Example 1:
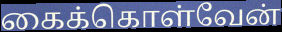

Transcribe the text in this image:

கைக்கொள்வேன்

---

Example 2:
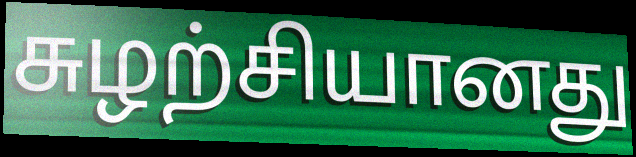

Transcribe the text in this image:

சுழற்சியானது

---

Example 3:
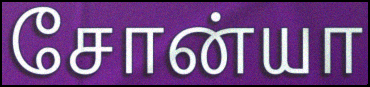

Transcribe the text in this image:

சோன்யா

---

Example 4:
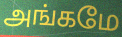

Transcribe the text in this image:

அங்கமே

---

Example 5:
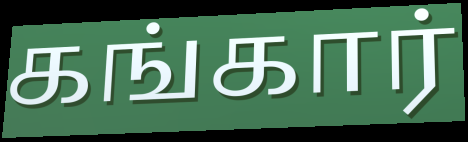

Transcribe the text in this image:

கங்கார்